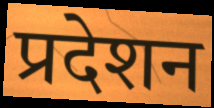
प्रदेशन